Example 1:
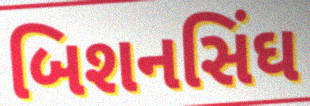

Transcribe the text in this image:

બિશનસિંઘ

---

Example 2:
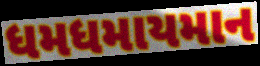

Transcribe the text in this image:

ધમધમાયમાન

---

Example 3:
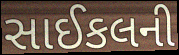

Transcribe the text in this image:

સાઈકલની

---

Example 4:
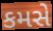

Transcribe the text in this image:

કમસે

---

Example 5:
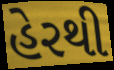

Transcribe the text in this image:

હેરથી